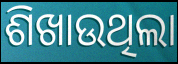
ଶିଖାଉଥିଲା